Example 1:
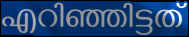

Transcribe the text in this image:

എറിഞ്ഞിട്ടത്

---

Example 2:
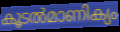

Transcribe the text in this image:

കൂടൽമാണിക്യം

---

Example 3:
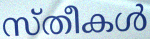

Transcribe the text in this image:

സ്തീകൾ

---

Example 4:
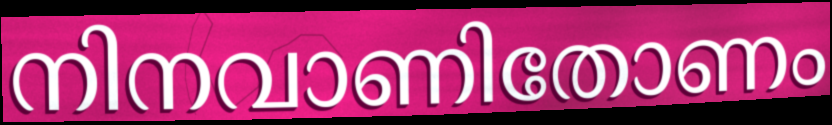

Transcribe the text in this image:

നിനവാണിതോണം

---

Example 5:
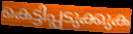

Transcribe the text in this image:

കെട്ടിപ്പടുക്കുക